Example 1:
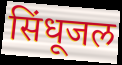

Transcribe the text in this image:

सिंधूजल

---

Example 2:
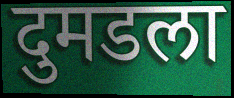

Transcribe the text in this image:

दुमडला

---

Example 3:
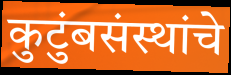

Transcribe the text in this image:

कुटुंबसंस्थांचे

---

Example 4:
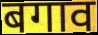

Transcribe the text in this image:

बगाव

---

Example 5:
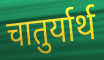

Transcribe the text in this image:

चातुर्यार्थ